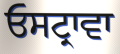
ਓਸਟ੍ਰਾਵਾ